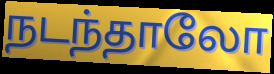
நடந்தாலோ